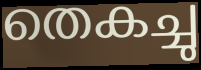
തെകച്ചു